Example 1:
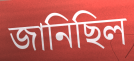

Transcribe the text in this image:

জানিছিল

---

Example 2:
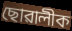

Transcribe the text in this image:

ছোৱালীক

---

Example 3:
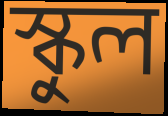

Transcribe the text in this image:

স্কুল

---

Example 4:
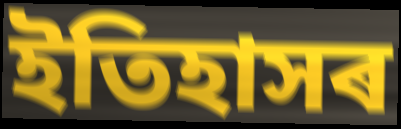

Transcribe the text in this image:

ইতিহাসৰ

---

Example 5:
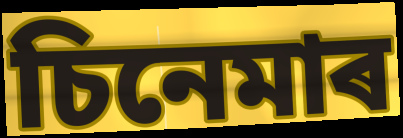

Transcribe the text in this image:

চিনেমাৰ